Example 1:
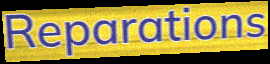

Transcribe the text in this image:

Reparations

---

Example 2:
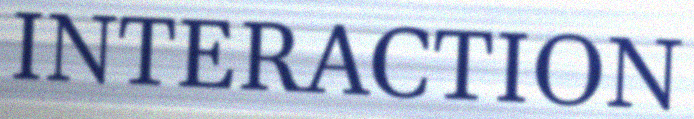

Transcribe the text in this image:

INTERACTION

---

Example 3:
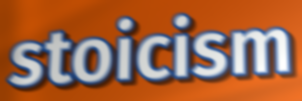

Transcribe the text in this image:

stoicism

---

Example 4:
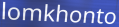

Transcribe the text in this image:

lomkhonto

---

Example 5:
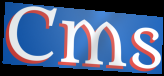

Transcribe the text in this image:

Cms